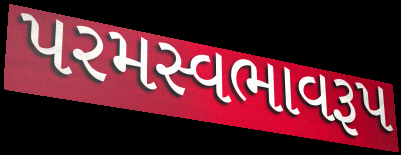
પરમસ્વભાવરૂપ